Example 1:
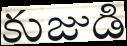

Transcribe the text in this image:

కుజుడి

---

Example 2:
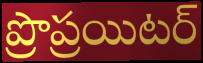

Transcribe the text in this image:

ప్రొప్రయిటర్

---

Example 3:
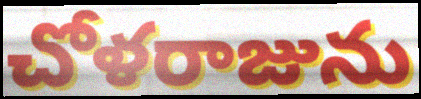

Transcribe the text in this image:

చోళరాజును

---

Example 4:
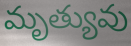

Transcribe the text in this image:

మృత్యువు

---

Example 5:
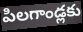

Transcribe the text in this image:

పిలగాండ్లకు